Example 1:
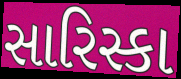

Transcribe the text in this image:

સારિસ્કા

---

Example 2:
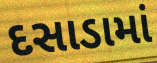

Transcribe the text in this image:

દસાડામાં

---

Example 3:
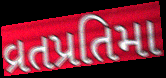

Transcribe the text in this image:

વ્રતપ્રતિમા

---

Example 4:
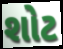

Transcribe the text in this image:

શોટ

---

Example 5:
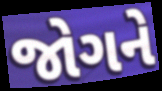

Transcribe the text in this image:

જોગને